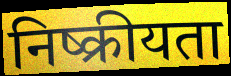
निष्क्रीयता